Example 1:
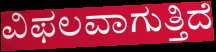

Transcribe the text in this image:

ವಿಫಲವಾಗುತ್ತಿದೆ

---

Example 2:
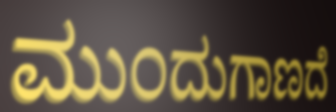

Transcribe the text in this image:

ಮುಂದುಗಾಣದೆ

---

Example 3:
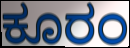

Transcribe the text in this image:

ಕೂರಂ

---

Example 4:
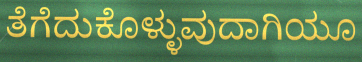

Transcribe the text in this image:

ತೆಗೆದುಕೊಳ್ಳುವುದಾಗಿಯೂ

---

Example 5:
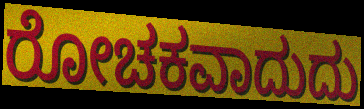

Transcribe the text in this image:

ರೋಚಕವಾದುದು